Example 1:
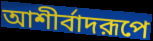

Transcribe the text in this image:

আশীর্বাদরূপে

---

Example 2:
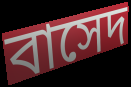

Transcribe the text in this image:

বাসেদ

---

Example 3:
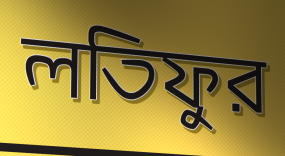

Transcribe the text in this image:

লতিফুর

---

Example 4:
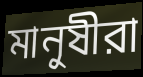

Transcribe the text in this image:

মানুষীরা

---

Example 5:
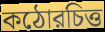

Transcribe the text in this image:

কঠোরচিত্ত